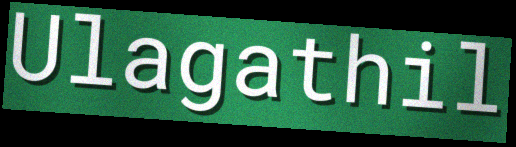
Ulagathil